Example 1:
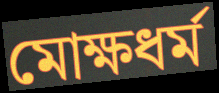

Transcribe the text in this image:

মোক্ষধর্ম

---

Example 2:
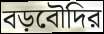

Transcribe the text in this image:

বড়বৌদির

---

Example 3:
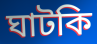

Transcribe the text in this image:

ঘাটকি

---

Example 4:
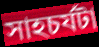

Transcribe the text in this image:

সাহচর্যটা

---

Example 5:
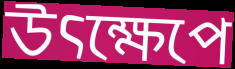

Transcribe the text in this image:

উৎক্ষেপে